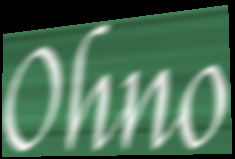
Ohno